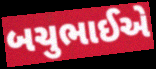
બચુભાઈએ